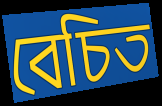
বেচিত